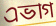
এভাগ